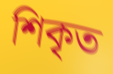
শিকৃত